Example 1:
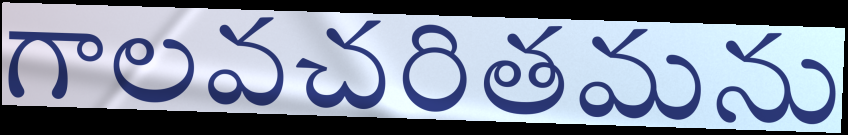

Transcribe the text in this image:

గాలవచరితమను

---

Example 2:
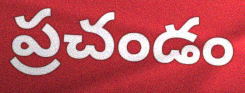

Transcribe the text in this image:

ప్రచండం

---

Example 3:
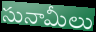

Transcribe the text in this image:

సునామీలు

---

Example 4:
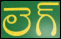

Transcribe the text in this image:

లెగ్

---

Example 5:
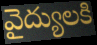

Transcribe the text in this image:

వైద్యులకి